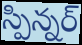
స్పిన్నర్